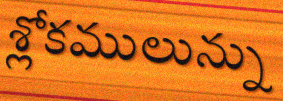
శ్లోకములున్ను